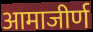
आमाजीर्ण